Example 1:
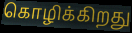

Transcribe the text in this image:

கொழிக்கிறது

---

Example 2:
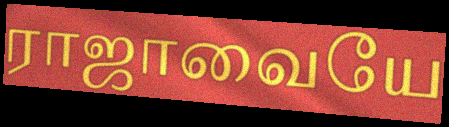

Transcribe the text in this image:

ராஜாவையே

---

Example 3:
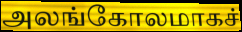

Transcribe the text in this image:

அலங்கோலமாகச்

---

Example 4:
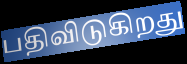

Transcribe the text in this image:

பதிவிடுகிறது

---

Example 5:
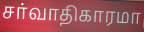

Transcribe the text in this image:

சர்வாதிகாரமா